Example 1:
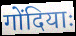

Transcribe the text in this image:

गोंदियाः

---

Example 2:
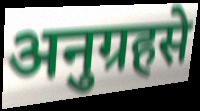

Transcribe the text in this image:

अनुग्रहसे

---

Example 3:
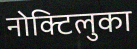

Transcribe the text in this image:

नोक्टिलुका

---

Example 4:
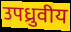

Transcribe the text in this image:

उपध्रुवीय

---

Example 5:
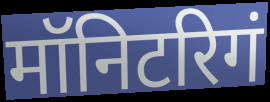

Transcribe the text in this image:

मॉनिटरिगं